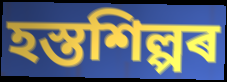
হস্তশিল্পৰ